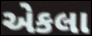
એકલા